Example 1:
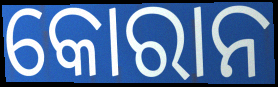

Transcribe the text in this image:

କୋରାନ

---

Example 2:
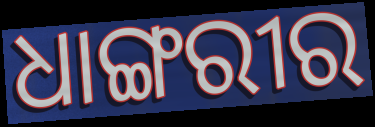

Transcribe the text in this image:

ଧାଙ୍ଗରୀର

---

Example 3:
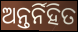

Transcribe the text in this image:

ଅନ୍ତର୍ନିହିତ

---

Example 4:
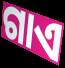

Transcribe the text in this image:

ଗାଏ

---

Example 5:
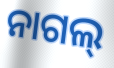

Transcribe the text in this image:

ନାଗଲ୍